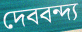
দেববন্দ্য